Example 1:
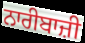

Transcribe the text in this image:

ਨਾਰੀਬਾਜ਼ੀ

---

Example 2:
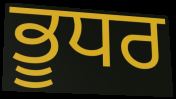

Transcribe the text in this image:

ਭੂਧਰ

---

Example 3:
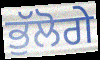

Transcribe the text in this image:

ਭੁੱਲੋਗੇ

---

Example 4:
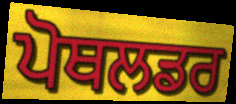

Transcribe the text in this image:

ਪੋਥਲਡਰ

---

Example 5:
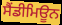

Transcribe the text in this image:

ਸੈਂਡੀਮਿਊਨ